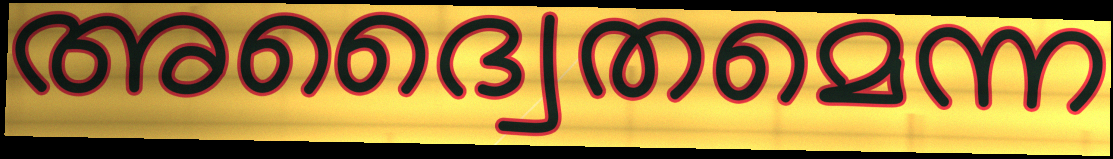
അദ്വൈതമെന്ന